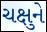
ચક્ષુને